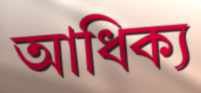
আধিক্য